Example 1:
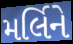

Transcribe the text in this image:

મર્લિને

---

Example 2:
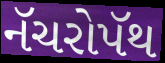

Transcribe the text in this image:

નૅચરોપૅથ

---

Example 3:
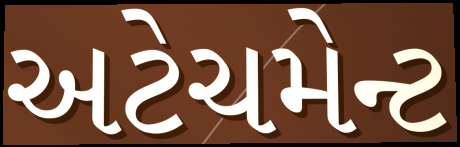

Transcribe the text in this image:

અટેચમેન્ટ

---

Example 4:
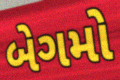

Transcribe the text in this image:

બેગમો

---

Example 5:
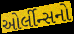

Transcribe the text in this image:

ઓર્લીન્સનો